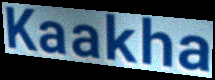
Kaakha